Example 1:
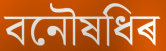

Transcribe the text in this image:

বনৌষধিৰ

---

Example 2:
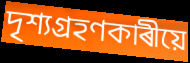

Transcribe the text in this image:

দৃশ্যগ্ৰহণকাৰীয়ে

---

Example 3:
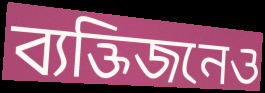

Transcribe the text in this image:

ব্যক্তিজনেও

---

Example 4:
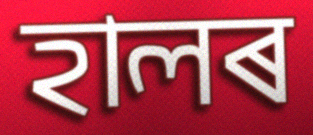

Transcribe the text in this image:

হালৰ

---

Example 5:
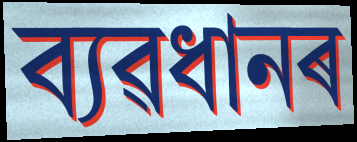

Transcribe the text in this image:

ব্যৱধানৰ